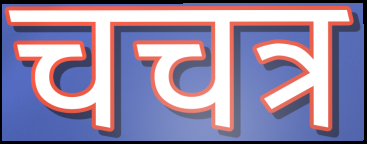
चचत्र